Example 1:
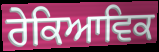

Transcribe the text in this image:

ਰੇਕਿਆਵਿਕ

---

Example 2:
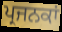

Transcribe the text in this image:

ਪ੍ਰਜਨਕਾਂ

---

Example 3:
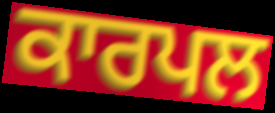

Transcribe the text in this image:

ਕਾਰਪਲ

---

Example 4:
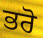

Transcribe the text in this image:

ਭਰੋ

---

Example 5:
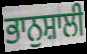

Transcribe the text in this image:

ਭਾਨੁਸ਼ਾਲੀ